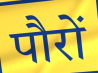
पौरों